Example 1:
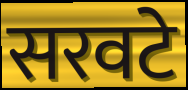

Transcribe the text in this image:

सरवटे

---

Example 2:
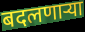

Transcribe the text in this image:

बदलणार्‍या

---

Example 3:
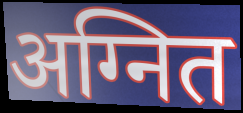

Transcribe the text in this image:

अग्नित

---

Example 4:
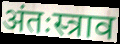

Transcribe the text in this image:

अंतःस्त्राव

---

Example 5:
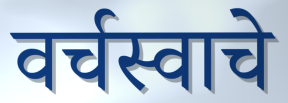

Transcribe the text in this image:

वर्चस्वाचे